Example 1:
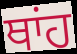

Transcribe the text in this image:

ਥਾਂਹ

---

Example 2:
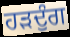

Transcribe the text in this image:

ਹੜਦੁੰਗ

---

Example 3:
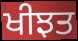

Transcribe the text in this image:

ਖੀਝਤ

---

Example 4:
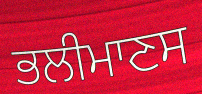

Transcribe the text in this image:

ਭਲੀਮਾਣਸ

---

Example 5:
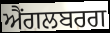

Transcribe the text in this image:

ਐਂਗਲਬਰਗ